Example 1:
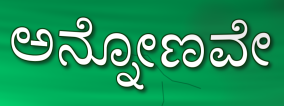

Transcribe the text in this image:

ಅನ್ನೋಣವೇ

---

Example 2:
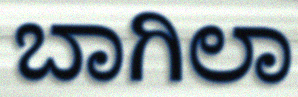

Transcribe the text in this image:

ಬಾಗಿಲಾ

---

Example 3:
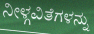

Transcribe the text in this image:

ನೀಳ್ಗವಿತೆಗಳನ್ನು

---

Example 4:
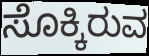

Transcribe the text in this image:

ಸೊಕ್ಕಿರುವ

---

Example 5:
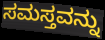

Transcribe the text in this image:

ಸಮಸ್ತವನ್ನು